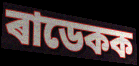
ৰাডেকক